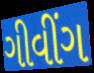
ગીવીંગ